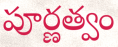
పూర్ణత్వం